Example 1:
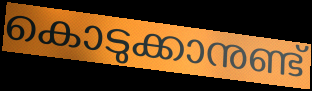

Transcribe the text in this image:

കൊടുക്കാനുണ്ട്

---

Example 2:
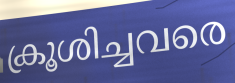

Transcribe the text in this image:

ക്രൂശിച്ചവരെ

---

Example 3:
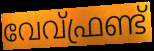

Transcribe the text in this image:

വേവ്ഫ്രണ്ട്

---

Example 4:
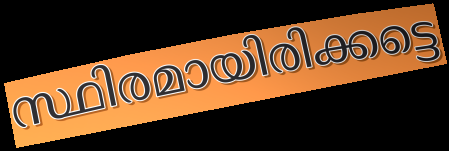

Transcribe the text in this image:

സ്ഥിരമായിരിക്കട്ടെ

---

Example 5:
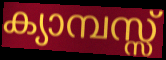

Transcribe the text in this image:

ക്യാമ്പസ്സ്